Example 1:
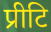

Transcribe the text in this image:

प्रीटि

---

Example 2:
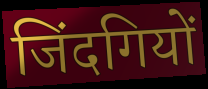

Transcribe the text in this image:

जिंदगियों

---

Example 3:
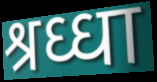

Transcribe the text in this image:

श्रध्धा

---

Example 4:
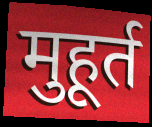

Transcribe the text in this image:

मुहूर्त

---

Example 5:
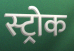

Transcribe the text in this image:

स्‍ट्रोक